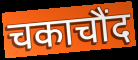
चकाचौंद